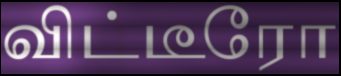
விட்டீரோ